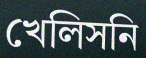
খেলিসনি